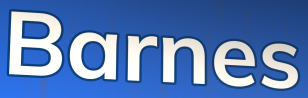
Barnes